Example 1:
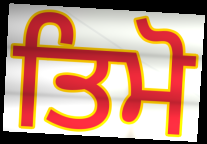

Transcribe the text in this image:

ਤਿਮੋ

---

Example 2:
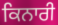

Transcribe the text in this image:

ਕਿਨਾਰੀ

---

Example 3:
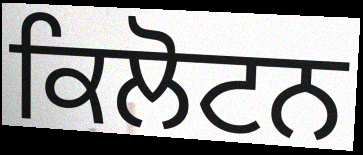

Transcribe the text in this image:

ਕਿਲੋਟਨ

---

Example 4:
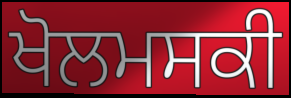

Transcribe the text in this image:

ਖੋਲਮਸਕੀ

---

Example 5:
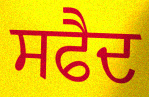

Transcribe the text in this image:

ਸਫੈਦ